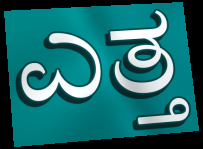
ಎತ್ತ